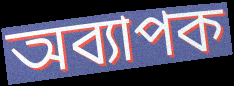
অব্যাপক